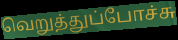
வெறுத்துப்போச்சு